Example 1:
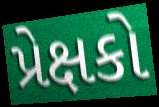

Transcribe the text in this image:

પ્રેક્ષકો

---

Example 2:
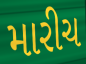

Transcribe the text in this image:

મારીચ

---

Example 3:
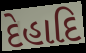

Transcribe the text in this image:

દેહાદિ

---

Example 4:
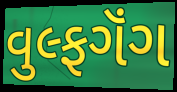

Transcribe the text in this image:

વુલ્ફગૅંગ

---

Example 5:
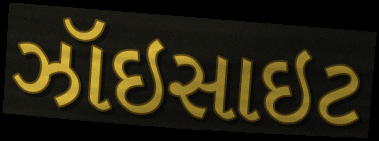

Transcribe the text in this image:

ઝૉઇસાઇટ